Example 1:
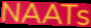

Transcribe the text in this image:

NAATs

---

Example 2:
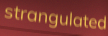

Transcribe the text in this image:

strangulated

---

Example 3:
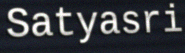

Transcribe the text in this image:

Satyasri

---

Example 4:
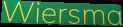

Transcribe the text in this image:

Wiersma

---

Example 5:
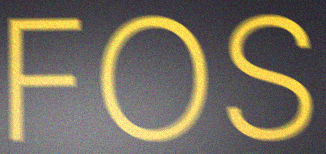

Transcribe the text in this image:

FOS